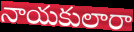
నాయకులారా